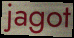
jagot